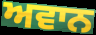
ਅਵਾਨ